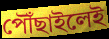
পৌঁছাইলেই